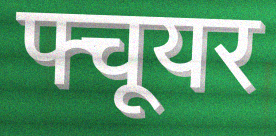
फ्चूयर